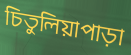
চিতুলিয়াপাড়া